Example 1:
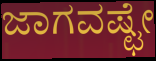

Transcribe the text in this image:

ಜಾಗವಷ್ಟೇ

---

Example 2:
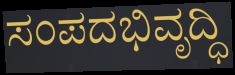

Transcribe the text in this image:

ಸಂಪದಭಿವೃದ್ಧಿ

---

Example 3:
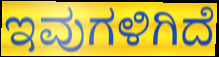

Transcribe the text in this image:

ಇವುಗಳಿಗಿದೆ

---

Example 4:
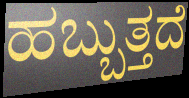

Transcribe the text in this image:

ಹಬ್ಬುತ್ತದೆ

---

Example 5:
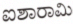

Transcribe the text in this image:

ಐಶಾರಾಮಿ